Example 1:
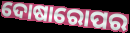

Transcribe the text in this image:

ଦୋଷାରୋପର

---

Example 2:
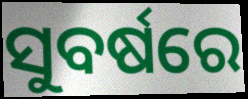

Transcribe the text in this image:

ସୁବର୍ଷରେ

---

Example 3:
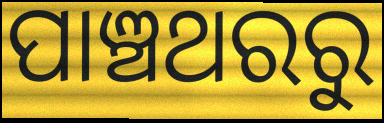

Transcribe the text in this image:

ପାଞ୍ଚଥରରୁ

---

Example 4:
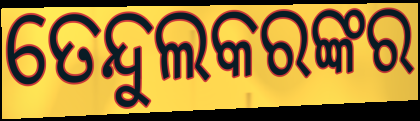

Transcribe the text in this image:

ତେନ୍ଦୁଲକରଙ୍କର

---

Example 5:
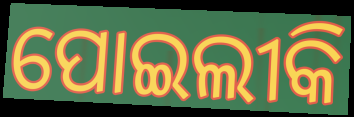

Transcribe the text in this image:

ପୋଇଲୀକି